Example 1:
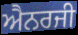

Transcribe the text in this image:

ਐਨਰਜੀ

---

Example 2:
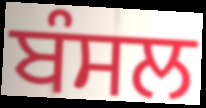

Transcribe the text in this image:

ਬੰਸਲ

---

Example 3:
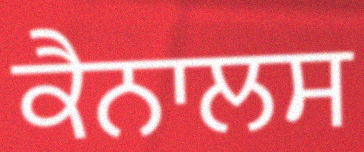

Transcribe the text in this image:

ਕੈਨਾਲਸ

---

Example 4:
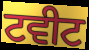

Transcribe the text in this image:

ਟਵੀਟ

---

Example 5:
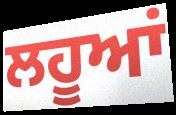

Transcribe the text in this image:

ਲਹੂਆਂ